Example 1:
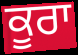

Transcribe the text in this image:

ਕੂਰਾ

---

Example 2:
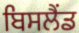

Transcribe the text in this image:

ਬਿਸਲੈਂਡ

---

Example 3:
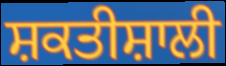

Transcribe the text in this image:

ਸ਼ਕਤੀਸ਼ਾਲੀ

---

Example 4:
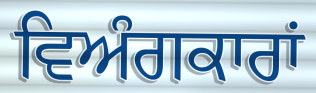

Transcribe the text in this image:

ਵਿਅੰਗਕਾਰਾਂ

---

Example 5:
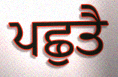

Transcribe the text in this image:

ਪਛੁਤੈ